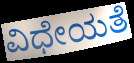
ವಿಧೇಯತೆ